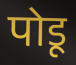
पोडू